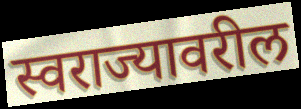
स्वराज्यावरील